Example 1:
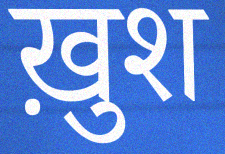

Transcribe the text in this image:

ख़ुश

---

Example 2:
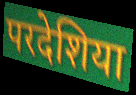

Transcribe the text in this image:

परदेशिया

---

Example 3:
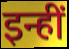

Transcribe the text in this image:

इन्‍हीं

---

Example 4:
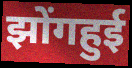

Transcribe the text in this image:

झोंगहुई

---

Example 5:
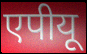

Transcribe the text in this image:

एपीयू